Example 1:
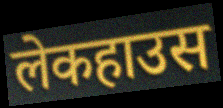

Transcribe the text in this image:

लेकहाउस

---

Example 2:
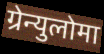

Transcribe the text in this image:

ग्रेन्युलोमा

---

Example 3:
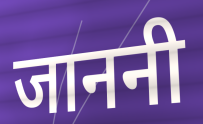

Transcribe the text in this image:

जाननी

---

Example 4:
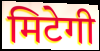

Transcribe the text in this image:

मिटेगी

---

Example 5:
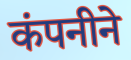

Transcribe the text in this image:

कंपनीने